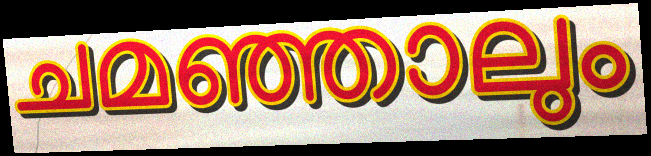
ചമഞ്ഞാലും